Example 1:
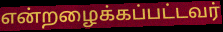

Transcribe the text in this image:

என்றழைக்கப்பட்டவர்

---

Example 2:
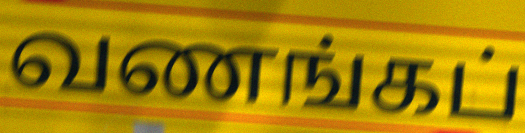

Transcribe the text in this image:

வணங்கப்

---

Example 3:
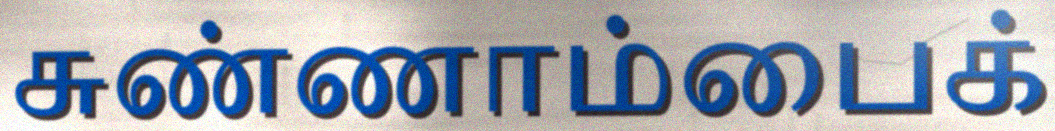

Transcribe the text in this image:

சுண்ணாம்பைக்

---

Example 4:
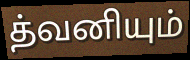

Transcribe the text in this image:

த்வனியும்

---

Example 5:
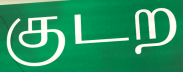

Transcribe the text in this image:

குடற